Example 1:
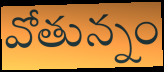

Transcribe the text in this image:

వోతున్నం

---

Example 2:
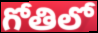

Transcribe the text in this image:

గోతిలో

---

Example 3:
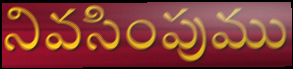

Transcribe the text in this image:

నివసింపుము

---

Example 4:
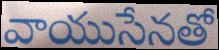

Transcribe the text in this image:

వాయుసేనతో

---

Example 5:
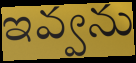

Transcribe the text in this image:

ఇవ్వను